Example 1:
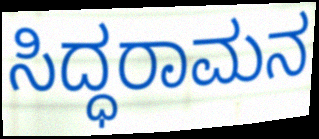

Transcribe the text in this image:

ಸಿದ್ಧರಾಮನ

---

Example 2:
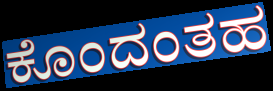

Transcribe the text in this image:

ಕೊಂದಂತಹ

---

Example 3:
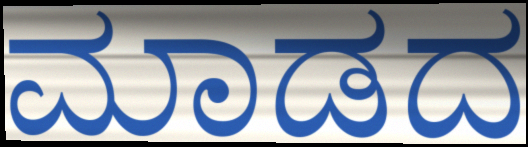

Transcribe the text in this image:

ಮಾಡದ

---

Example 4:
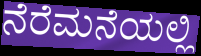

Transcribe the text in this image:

ನೆರೆಮನೆಯಲ್ಲಿ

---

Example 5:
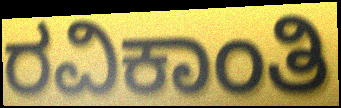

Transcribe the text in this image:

ರವಿಕಾಂತಿ